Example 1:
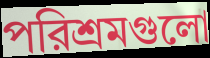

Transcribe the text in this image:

পরিশ্রমগুলো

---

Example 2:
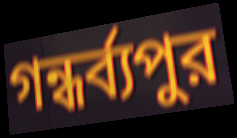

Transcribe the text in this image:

গন্ধর্ব্যপুর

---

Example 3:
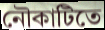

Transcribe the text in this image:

নৌকাটিতে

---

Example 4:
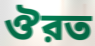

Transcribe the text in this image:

ঔরত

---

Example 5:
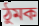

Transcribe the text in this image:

ঠুমক